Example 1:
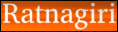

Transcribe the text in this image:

Ratnagiri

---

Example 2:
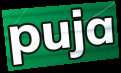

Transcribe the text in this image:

puja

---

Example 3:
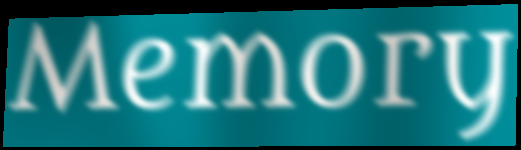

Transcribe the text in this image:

Memory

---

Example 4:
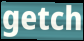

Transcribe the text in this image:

getch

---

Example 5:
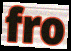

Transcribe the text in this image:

fro